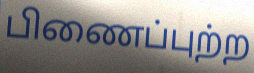
பிணைப்புற்ற